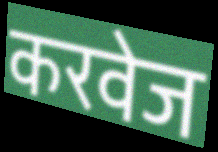
करवेज